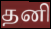
தனி